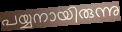
പയ്യനായിരുന്നു